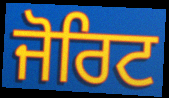
ਜੋਰਿਟ